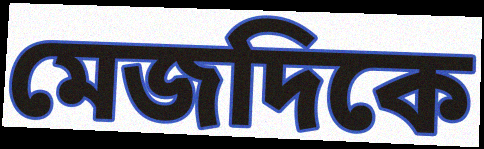
মেজদিকে